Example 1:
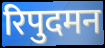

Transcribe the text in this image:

रिपुदमन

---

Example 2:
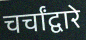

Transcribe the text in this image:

चर्चांद्वारे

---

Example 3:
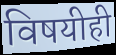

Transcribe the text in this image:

विषयीही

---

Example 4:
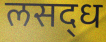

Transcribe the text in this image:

लसद्ध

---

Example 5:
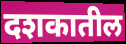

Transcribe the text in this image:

दशकातील